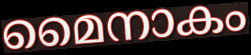
മൈനാകം